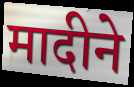
मादीने